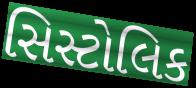
સિસ્ટોલિક